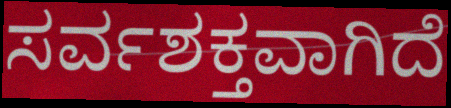
ಸರ್ವಶಕ್ತವಾಗಿದೆ